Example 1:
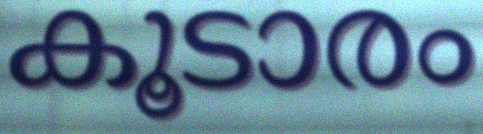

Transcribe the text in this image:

കൂടാരം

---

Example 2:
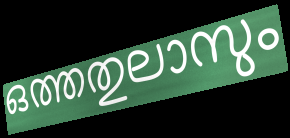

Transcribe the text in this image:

ഒത്തതുലാസും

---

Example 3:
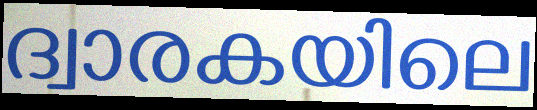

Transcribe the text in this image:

ദ്വാരകയിലെ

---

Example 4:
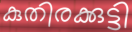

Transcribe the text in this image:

കുതിരക്കുട്ടി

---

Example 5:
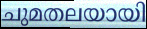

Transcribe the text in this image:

ചുമതലയായി